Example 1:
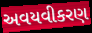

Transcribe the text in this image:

અવયવીકરણ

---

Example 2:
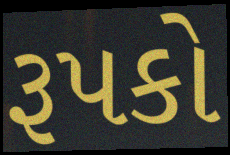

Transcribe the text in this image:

રૂપકો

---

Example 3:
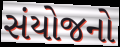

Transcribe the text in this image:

સંયોજનો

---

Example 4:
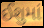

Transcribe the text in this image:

ઈશુમાં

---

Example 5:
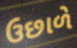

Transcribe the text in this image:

ઉછાળે